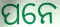
ପନେ